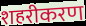
शहरीकरण